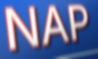
NAP